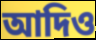
আদিও